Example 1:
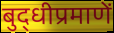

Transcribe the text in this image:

बुद्धीप्रमाणें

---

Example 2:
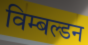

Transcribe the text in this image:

विम्बल्डन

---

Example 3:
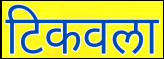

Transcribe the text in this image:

टिकवला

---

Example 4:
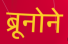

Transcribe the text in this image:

ब्रूनोने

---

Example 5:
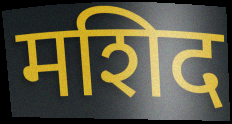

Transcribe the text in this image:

मशिद